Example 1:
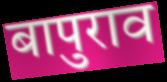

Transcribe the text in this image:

बापुराव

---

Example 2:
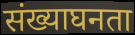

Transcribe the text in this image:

संख्याघनता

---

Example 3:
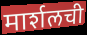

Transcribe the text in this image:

मार्शलची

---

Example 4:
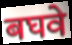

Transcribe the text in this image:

बघवे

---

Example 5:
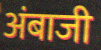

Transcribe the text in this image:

अंबाजी